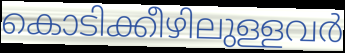
കൊടിക്കീഴിലുള്ളവർ